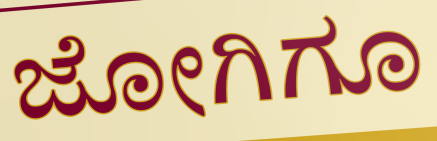
ಜೋಗಿಗೂ